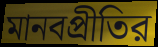
মানবপ্রীতির